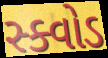
સ્ક્વોડ